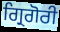
ਗ੍ਰਿਗੋਰੀ